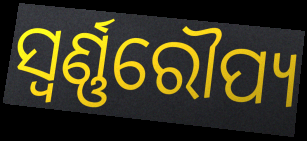
ସ୍ୱର୍ଣ୍ଣରୌପ୍ୟ